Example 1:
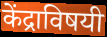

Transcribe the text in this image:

केंद्राविषयी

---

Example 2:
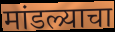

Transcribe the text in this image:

मांडल्याचा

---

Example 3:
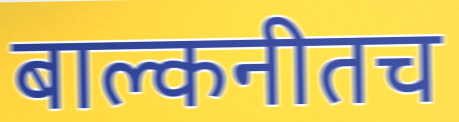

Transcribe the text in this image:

बाल्कनीतच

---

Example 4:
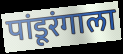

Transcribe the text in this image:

पांडूरंगाला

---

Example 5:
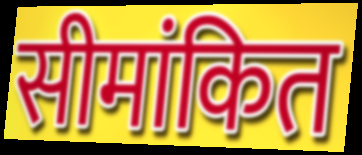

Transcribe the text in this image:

सीमांकित